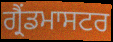
ਗ੍ਰੈਂਡਮਾਸਟਰ